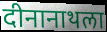
दीनानाथला